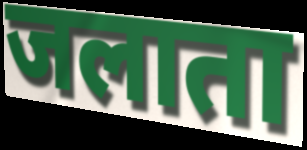
जलाता